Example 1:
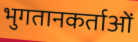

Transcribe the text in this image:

भुगतानकर्ताओं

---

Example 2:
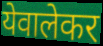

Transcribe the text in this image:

येवालेकर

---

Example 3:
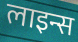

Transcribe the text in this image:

लाइन्स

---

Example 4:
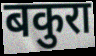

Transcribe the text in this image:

बकुरा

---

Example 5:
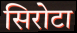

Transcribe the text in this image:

सिरोटा